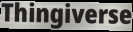
Thingiverse